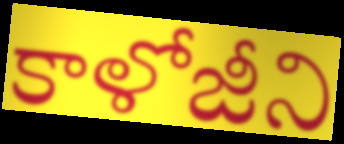
కాళోజీని